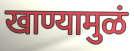
खाण्यामुळं